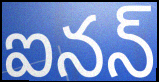
ఐనన్